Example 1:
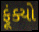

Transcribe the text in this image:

ફૂંક્યો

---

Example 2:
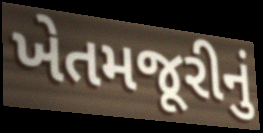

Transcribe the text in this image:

ખેતમજૂરીનું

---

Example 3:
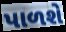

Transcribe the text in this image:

પાળશે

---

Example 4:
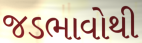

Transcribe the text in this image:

જડભાવોથી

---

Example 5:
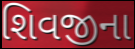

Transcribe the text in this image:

શિવજીના